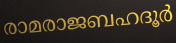
രാമരാജബഹദൂർ